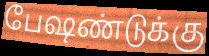
பேஷண்டுக்கு